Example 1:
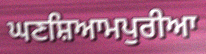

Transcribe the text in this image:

ਘਣਸ਼ਿਆਮਪੁਰੀਆ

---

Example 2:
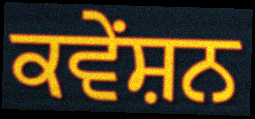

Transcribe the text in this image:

ਕਵੇਂਸ਼ਨ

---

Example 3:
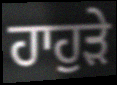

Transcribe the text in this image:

ਹਾਹੁੜੇ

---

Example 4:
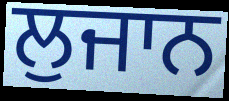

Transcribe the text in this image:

ਲੁਜਾਨ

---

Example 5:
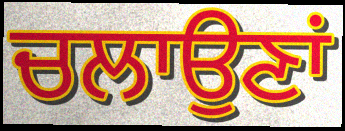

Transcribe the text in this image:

ਚਲਾਉਣਾਂ